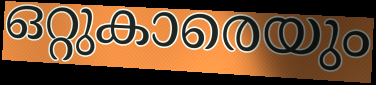
ഒറ്റുകാരെയും